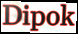
Dipok